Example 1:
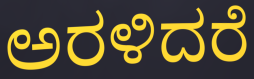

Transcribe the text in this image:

ಅರಳಿದರೆ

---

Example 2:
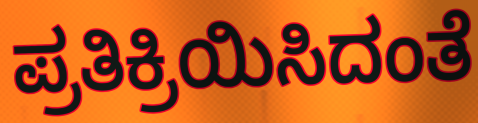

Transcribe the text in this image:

ಪ್ರತಿಕ್ರಿಯಿಸಿದಂತೆ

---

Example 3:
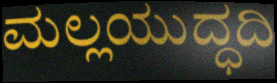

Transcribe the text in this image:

ಮಲ್ಲಯುದ್ಧದಿ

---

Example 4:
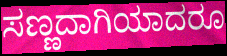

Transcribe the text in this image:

ಸಣ್ಣದಾಗಿಯಾದರೂ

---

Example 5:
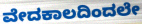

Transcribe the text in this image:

ವೇದಕಾಲದಿಂದಲೇ